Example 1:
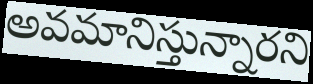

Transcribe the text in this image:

అవమానిస్తున్నారని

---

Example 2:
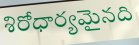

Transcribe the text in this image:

శిరోధార్యమైనది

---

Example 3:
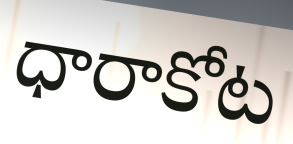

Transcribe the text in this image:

ధారాకోట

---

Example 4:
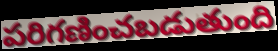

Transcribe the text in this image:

పరిగణించబడుతుంది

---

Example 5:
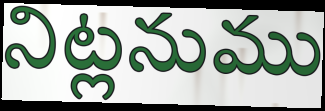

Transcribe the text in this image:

నిట్లనుము